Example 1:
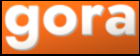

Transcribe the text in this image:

gora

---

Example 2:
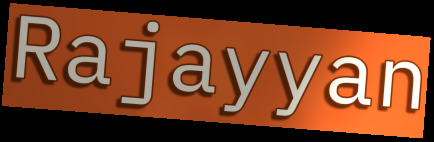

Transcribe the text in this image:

Rajayyan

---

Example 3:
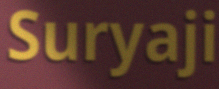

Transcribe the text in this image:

Suryaji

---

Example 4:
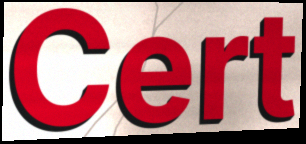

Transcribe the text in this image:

Cert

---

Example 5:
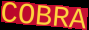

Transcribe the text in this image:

COBRA